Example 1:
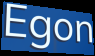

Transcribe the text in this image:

Egon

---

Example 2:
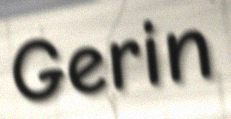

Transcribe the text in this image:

Gerin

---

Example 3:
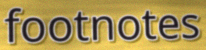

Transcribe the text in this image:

footnotes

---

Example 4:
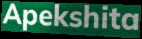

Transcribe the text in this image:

Apekshita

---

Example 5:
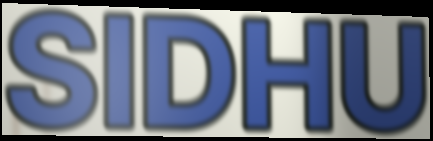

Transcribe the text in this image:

SIDHU